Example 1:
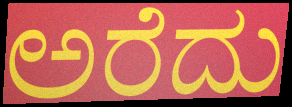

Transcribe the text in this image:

ಅರೆದು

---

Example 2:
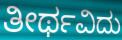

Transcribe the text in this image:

ತೀರ್ಥವಿದು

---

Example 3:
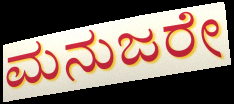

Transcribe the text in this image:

ಮನುಜರೇ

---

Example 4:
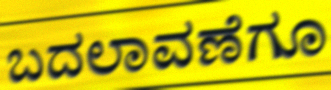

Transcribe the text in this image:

ಬದಲಾವಣೆಗೂ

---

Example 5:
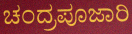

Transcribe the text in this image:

ಚಂದ್ರಪೂಜಾರಿ